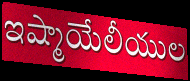
ఇష్మాయేలీయుల